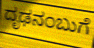
ದೃಢನಂಬುಗೆ